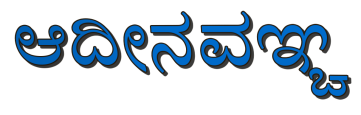
ಆದೀನವಞ್ಚ